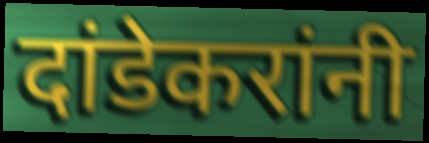
दांडेकरांनी